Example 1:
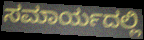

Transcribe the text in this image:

ಸಮಾರ್ಯದಲ್ಲಿ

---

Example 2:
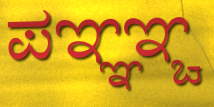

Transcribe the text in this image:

ಪಞ್ಞಞ್ಚ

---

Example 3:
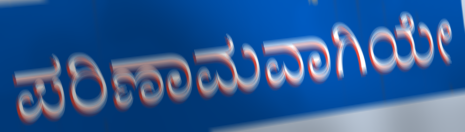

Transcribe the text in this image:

ಪರಿಣಾಮವಾಗಿಯೇ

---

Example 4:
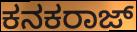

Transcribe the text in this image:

ಕನಕರಾಜ್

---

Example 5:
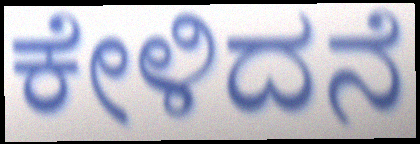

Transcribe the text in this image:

ಕೇಳಿದನೆ